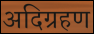
अदिग्रहण